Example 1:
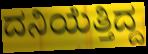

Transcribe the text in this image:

ದನಿಯೆತ್ತಿದ್ದ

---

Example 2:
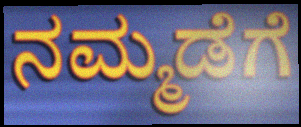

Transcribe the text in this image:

ನಮ್ಮಡೆಗೆ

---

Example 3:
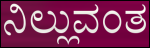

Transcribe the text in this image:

ನಿಲ್ಲುವಂತ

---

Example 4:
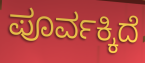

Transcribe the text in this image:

ಪೂರ್ವಕ್ಕಿದೆ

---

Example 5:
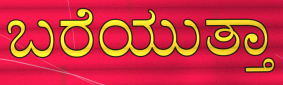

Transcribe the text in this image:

ಬರೆಯುತ್ತಾ